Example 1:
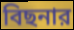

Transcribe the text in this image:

বিছনার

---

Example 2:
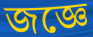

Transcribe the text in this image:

জজ্ঞে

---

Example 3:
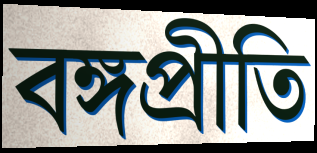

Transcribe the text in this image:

বঙ্গপ্রীতি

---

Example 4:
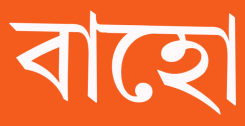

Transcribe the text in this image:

বাহো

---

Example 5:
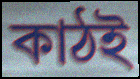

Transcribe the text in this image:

কাঠই